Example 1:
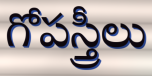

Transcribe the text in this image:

గోపస్త్రీలు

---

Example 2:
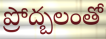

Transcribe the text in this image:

ప్రోద్బలంతో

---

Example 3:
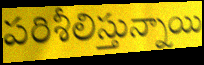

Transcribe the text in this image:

పరిశీలిస్తున్నాయి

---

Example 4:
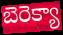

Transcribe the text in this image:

బెరెక్యా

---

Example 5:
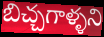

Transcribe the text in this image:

బిచ్చగాళ్ళని